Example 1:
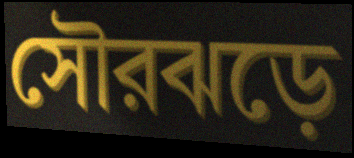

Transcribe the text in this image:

সৌরঝড়ে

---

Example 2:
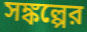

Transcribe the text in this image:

সঙ্কল্পের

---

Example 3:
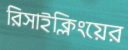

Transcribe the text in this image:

রিসাইক্লিংয়ের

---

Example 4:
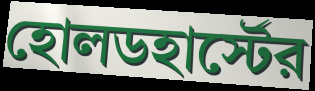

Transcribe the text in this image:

হোলডহার্স্টের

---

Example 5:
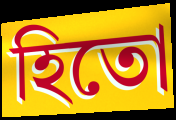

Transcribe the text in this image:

হিতো